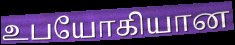
உபயோகியான